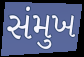
સંમુખ